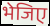
भेजिए